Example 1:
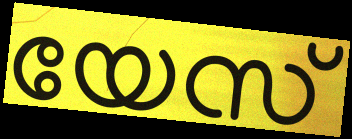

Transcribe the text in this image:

യേസ്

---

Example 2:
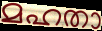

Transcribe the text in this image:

മഹതാ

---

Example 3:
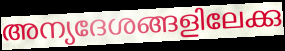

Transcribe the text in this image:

അന്യദേശങ്ങളിലേക്കു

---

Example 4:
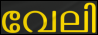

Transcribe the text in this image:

വേലി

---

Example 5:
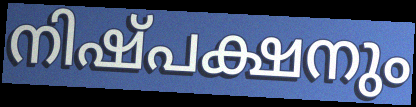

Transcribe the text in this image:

നിഷ്പക്ഷനും